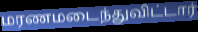
மரணமடைந்துவிட்டார்